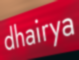
dhairya